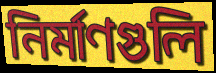
নির্মাণগুলি